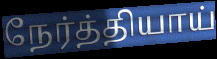
நேர்த்தியாய்